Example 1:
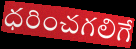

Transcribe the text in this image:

ధరించగలిగే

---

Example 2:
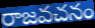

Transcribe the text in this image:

రాజవచనం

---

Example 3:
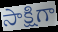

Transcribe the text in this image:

సాక్షిగా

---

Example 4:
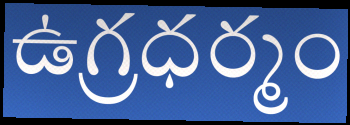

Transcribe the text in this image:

ఉగ్రధర్మం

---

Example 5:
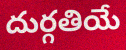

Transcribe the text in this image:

దుర్గతియే